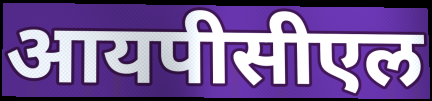
आयपीसीएल